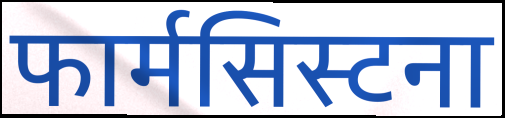
फार्मसिस्टना